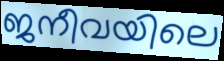
ജനീവയിലെ